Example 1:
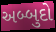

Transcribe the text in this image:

અબ્બુદો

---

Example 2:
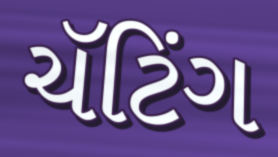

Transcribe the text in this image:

ચૅટિંગ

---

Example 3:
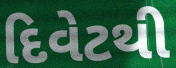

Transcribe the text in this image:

દિવેટથી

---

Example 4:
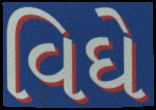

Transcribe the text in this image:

વિઘે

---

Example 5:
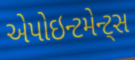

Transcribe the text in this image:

એપોઇન્ટમેન્ટ્સ